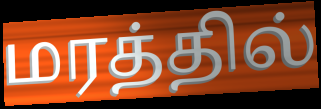
மரத்தில்